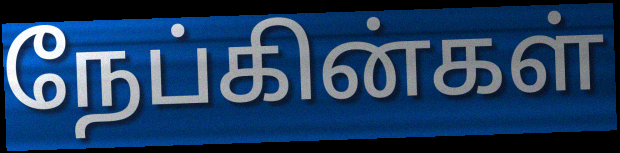
நேப்கின்கள்